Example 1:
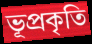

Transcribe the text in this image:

ভূপ্রকৃতি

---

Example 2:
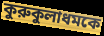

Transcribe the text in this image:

কুরুকুলাধমকে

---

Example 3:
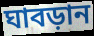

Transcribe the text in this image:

ঘাবড়ান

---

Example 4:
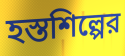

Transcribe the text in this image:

হস্তশিল্পের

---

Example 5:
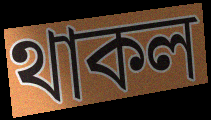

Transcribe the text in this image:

থাকল